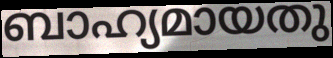
ബാഹ്യമായതു